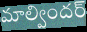
మాల్విందర్